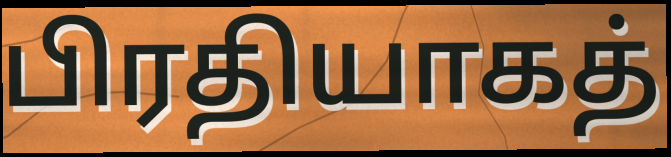
பிரதியாகத்